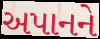
અપાનને